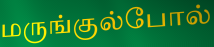
மருங்குல்போல்